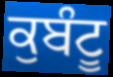
ਕੁਬੰਟੂ